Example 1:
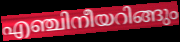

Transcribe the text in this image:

എഞ്ചിനീയറിങ്ങും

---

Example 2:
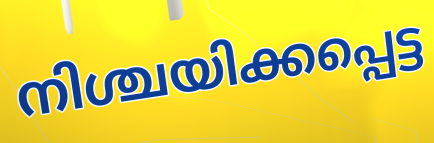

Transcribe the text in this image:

നിശ്ചയിക്കപ്പെട്ട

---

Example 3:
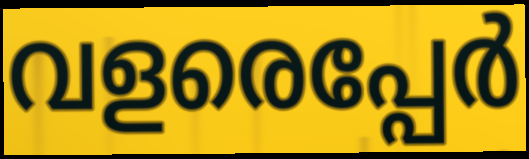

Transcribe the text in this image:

വളരെപ്പേർ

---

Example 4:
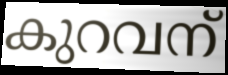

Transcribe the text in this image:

കുറവന്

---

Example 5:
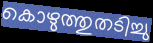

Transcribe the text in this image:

കൊഴുത്തുതടിച്ചു